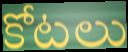
కోటలు